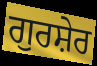
ਗੁਰਸ਼ੇਰ